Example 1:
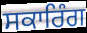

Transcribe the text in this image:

ਸਕਾਰਿੰਗ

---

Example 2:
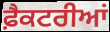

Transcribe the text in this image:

ਫ਼ੈਕਟਰੀਆਂ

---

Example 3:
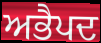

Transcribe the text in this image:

ਅਭੈਪਦ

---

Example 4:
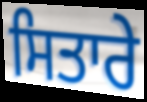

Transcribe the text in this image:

ਸਿਤਾਰੇ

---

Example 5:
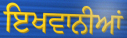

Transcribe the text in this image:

ਇਖਵਾਨੀਆਂ